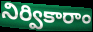
నిర్వికారాం